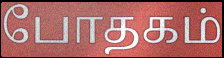
போதகம்